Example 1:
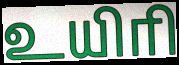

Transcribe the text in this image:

உயிரி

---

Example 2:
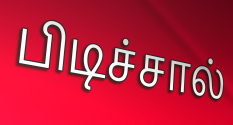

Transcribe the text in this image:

பிடிச்சால்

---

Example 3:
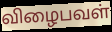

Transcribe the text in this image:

விழைபவள்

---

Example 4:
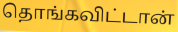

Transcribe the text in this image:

தொங்கவிட்டான்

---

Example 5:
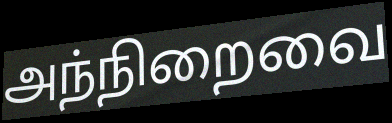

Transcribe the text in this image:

அந்நிறைவை